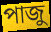
পাজু